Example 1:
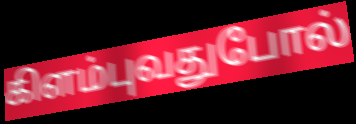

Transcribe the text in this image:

கிளம்புவதுபோல்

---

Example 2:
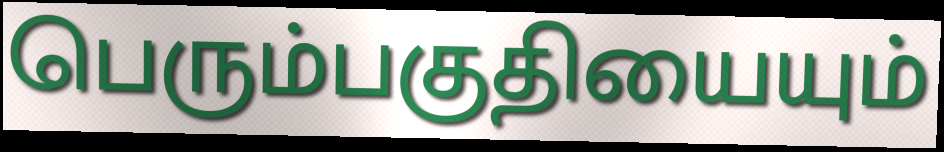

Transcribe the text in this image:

பெரும்பகுதியையும்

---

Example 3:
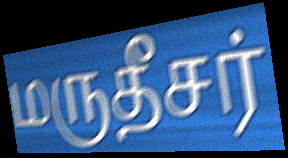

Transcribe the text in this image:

மருதீசர்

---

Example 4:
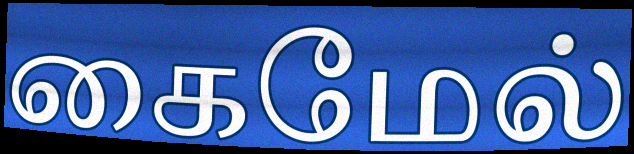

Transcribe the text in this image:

கைமேல்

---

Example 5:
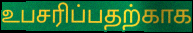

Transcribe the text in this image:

உபசரிப்பதற்காக